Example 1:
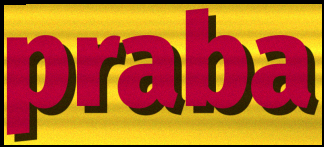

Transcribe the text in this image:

praba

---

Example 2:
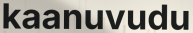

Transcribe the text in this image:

kaanuvudu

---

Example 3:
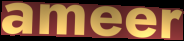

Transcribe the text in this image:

ameer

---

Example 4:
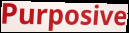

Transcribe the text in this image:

Purposive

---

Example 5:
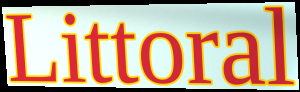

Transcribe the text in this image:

Littoral